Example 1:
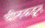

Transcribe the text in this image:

चीनकडून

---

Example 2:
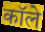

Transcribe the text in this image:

कॉले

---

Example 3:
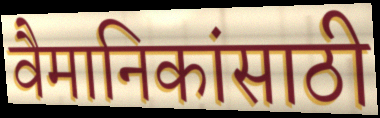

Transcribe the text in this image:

वैमानिकांसाठी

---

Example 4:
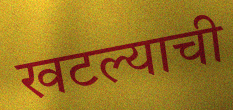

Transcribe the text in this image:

खटल्याची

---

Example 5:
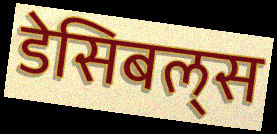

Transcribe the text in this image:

डेसिबल्स